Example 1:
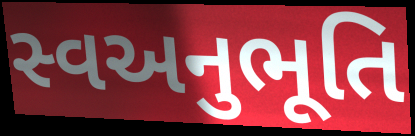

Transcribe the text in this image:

સ્વઅનુભૂતિ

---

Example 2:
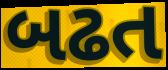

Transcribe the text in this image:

બઢત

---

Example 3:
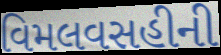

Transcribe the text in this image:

વિમલવસહીની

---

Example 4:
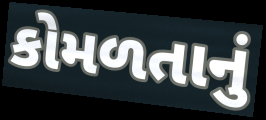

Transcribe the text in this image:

કોમળતાનું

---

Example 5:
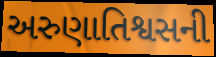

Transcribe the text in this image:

અરુણાતિશ્વસની